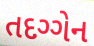
તદગ્ગેન